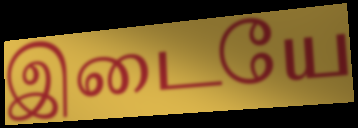
இடையே